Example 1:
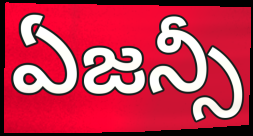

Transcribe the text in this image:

ఏజన్సీ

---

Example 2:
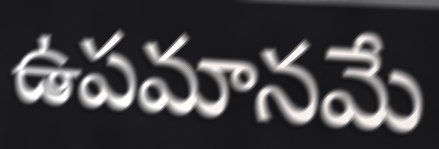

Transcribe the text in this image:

ఉపమానమే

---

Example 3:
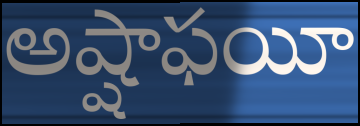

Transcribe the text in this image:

అష్షాఫయీ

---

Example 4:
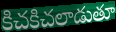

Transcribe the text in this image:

కిచకిచలాడుతూ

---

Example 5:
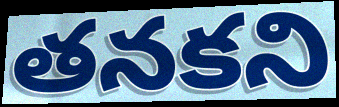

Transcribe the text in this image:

తనకని